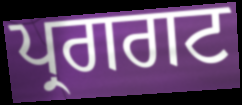
ਪ੍ਰਗਗਟ